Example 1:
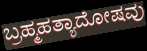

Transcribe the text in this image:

ಬ್ರಹ್ಮಹತ್ಯಾದೋಷವು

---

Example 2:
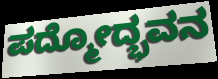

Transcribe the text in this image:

ಪದ್ಮೋದ್ಭವನ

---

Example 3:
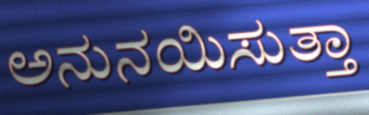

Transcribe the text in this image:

ಅನುನಯಿಸುತ್ತಾ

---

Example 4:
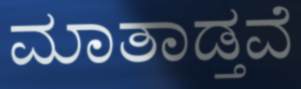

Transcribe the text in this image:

ಮಾತಾಡ್ತವೆ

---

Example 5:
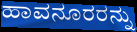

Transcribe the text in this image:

ಹಾವನೂರರನ್ನು